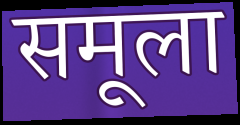
समूला